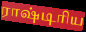
ராஷ்டிரிய